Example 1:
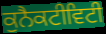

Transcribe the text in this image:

ਕੁਨੈਕਟੀਵਿਟੀ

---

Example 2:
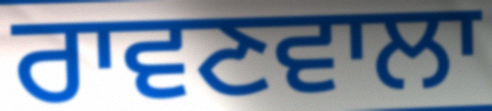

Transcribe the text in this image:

ਰਾਵਣਵਾਲਾ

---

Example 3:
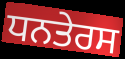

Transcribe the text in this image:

ਧਨਤੇਰਸ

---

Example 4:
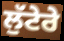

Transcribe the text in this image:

ਲੁੱਟੇਰੇ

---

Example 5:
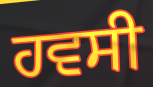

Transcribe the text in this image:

ਹਵਸੀ